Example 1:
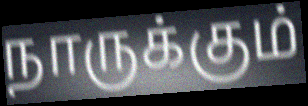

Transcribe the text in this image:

நாருக்கும்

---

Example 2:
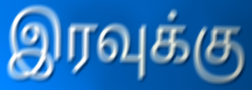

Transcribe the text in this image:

இரவுக்கு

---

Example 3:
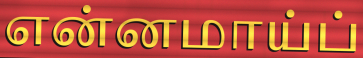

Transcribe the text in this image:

என்னமாய்ப்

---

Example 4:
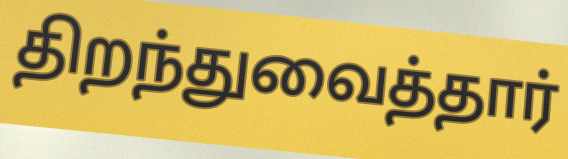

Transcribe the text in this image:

திறந்துவைத்தார்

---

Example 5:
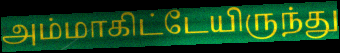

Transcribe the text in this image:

அம்மாகிட்டேயிருந்து